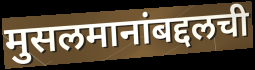
मुसलमानांबद्दलची